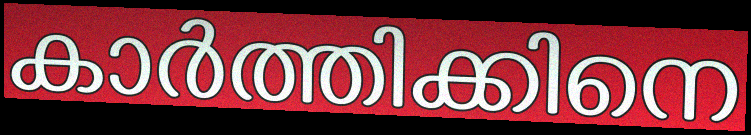
കാർത്തിക്കിനെ